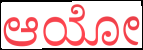
ಆಯೋ